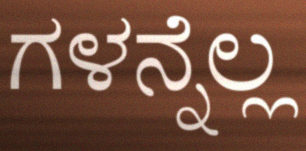
ಗಳನ್ನೆಲ್ಲ